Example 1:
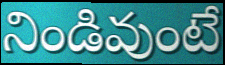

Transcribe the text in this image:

నిండివుంటే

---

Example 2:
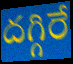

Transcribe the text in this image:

దగ్గిరే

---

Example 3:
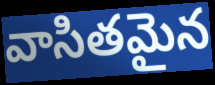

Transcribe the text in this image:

వాసితమైన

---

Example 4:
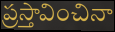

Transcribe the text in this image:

ప్రస్తావించినా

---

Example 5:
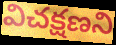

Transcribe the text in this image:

విచక్షణని